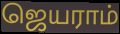
ஜெயராம்